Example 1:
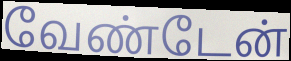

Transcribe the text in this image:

வேண்டேன்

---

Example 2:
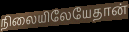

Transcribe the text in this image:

நிலையிலேயேதான்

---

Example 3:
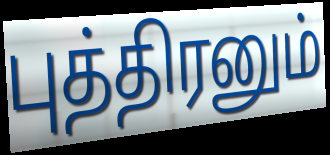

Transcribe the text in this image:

புத்திரனும்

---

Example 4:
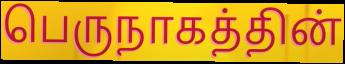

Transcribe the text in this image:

பெருநாகத்தின்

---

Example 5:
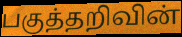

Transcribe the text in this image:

பகுத்தறிவின்